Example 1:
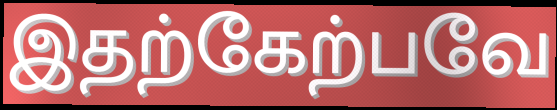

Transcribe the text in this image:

இதற்கேற்பவே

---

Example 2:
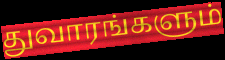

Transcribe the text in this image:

துவாரங்களும்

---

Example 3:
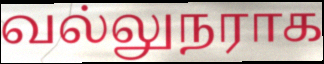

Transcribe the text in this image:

வல்லுநராக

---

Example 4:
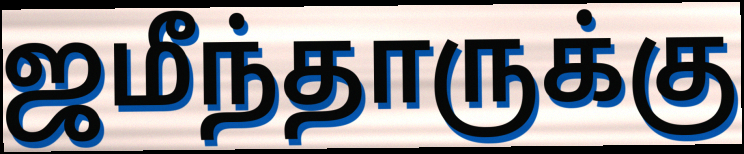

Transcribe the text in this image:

ஜமீந்தாருக்கு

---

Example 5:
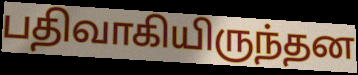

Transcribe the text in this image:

பதிவாகியிருந்தன